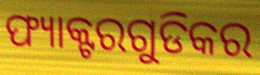
ଫ୍ୟାକ୍ଟରଗୁଡିକର